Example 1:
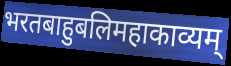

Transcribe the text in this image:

भरतबाहुबलिमहाकाव्यम्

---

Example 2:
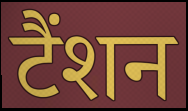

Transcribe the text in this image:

टैंशन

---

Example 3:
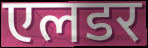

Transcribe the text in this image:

एलडर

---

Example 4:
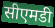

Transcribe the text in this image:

सीएमडी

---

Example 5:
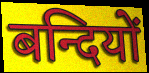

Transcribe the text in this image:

बन्दियों